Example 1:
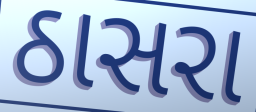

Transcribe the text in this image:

ઠાસરા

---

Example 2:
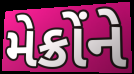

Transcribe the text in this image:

મેક્રોંને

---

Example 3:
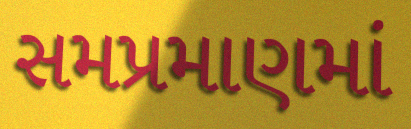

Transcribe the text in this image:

સમપ્રમાણમાં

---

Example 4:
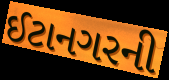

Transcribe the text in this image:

ઈટાનગરની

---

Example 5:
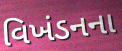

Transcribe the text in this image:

વિખંડનના